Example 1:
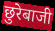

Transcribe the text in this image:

छुरेबाजी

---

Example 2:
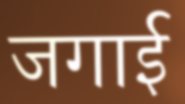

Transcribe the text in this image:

जगाई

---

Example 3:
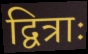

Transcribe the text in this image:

द्वित्राः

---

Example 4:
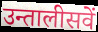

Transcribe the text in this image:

उन्तालीसवें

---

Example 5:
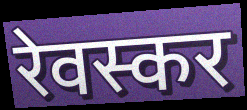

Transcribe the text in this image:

रेवस्कर